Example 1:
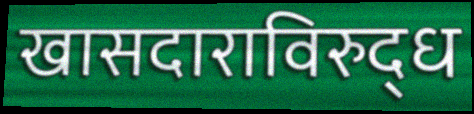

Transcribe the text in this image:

खासदाराविरुद्ध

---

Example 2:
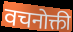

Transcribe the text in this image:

वचनोक्ती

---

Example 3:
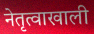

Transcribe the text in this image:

नेतृत्वाखाली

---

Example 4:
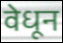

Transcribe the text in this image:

वेधून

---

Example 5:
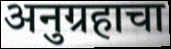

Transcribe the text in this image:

अनुग्रहाचा